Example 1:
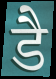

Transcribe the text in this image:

डै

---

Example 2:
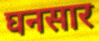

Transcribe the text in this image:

घनसार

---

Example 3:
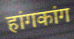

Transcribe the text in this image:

हांगकांग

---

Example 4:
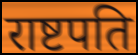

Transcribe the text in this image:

राष्टपति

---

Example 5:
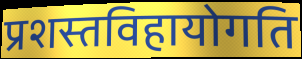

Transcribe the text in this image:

प्रशस्तविहायोगति